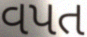
વપત